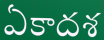
ఏకాదశ